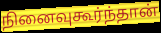
நினைவுகூர்ந்தான்